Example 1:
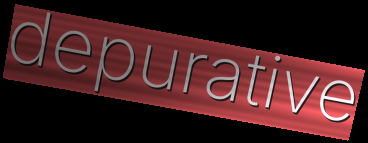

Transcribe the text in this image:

depurative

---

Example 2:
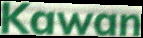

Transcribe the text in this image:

Kawan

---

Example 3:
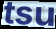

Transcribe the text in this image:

tsu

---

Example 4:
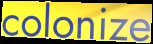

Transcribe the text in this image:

colonize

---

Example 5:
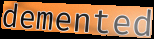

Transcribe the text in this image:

demented